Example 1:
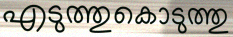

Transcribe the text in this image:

എടുത്തുകൊടുത്തു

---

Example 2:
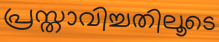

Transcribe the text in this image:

പ്രസ്താവിച്ചതിലൂടെ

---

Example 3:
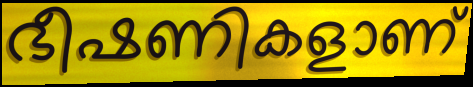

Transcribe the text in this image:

ഭീഷണികളാണ്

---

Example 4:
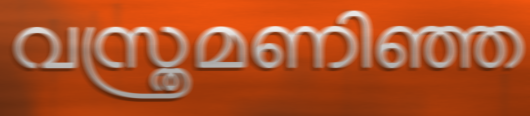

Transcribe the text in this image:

വസ്ത്രമണിഞ്ഞ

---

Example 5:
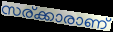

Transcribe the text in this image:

സര്ക്കാരാണ്